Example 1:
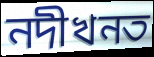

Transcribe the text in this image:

নদীখনত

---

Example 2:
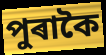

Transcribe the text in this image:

পুৰাকৈ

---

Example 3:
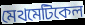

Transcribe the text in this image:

মেথমেটিকেল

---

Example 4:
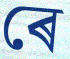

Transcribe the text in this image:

ৰে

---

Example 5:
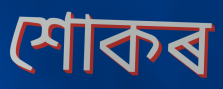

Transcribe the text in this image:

শোকৰ